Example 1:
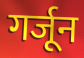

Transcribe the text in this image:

गर्जून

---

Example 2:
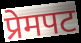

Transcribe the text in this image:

प्रेमपट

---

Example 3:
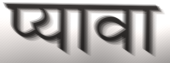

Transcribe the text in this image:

प्यावा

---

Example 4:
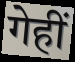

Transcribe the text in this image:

गेहीं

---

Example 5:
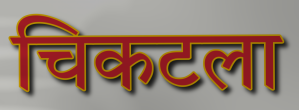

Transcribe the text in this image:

चिकटला